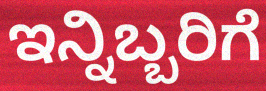
ಇನ್ನಿಬ್ಬರಿಗೆ